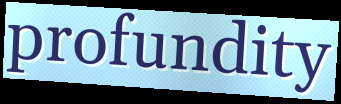
profundity